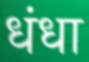
धंधा